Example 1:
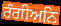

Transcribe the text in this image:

ਰੰਗੀਅਨਿ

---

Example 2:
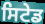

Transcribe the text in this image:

ਸਿਟੇਡ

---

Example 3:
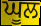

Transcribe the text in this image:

ਘੂਲ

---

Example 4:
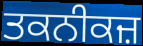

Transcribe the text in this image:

ਤਕਨੀਕਜ਼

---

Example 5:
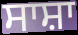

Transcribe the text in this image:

ਸਾਸ਼ਾ